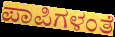
ಪಾಪಿಗಳಂತೆ